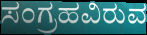
ಸಂಗ್ರಹವಿರುವ